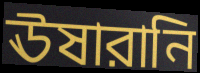
ঊষারানি